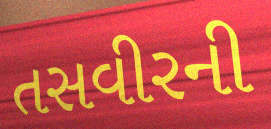
તસવીરની